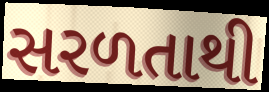
સરળતાથી